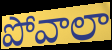
పోవాలా